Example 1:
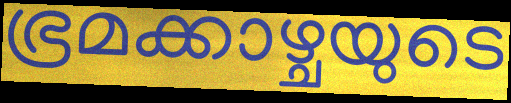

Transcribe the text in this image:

ഭ്രമക്കാഴ്ചയുടെ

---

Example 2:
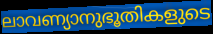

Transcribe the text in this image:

ലാവണ്യാനുഭൂതികളുടെ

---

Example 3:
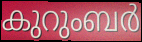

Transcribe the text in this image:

കുറുംബർ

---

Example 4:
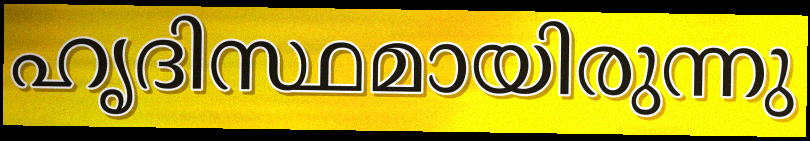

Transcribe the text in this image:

ഹൃദിസ്ഥമായിരുന്നു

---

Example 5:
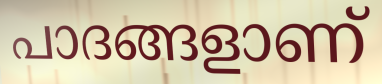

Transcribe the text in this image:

പാദങ്ങളാണ്